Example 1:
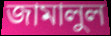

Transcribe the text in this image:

জামালুল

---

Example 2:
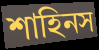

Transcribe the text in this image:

শাহিনস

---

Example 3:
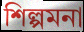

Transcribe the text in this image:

শিল্পমনা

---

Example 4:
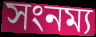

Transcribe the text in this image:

সংনম্য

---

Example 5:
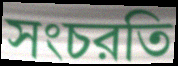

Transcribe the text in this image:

সংচরতি